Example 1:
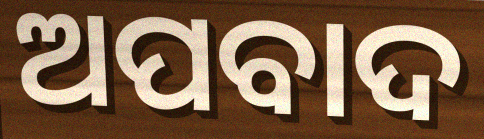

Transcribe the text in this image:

ଅପବାଦ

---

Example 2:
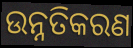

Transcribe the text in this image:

ଉନ୍ନତିକରଣ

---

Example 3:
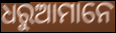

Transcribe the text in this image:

ଧରୁଆମାନେ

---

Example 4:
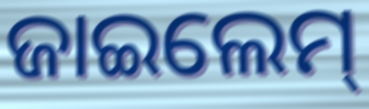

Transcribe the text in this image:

ଜାଇଲେମ୍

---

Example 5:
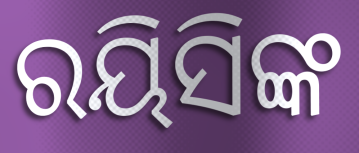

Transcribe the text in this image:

ରୟିସିଙ୍କ